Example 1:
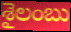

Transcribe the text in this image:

శైలంబు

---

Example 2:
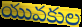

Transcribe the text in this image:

యువకుల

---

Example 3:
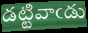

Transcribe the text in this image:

డట్టివాఁడు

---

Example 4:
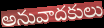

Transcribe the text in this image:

అనువాదకులు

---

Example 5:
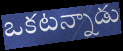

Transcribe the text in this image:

ఒకటన్నాడు